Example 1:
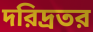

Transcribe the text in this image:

দরিদ্রতর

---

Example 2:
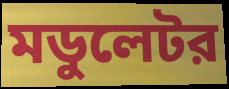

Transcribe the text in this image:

মডুলেটর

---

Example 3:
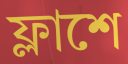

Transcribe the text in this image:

ফ্লাশে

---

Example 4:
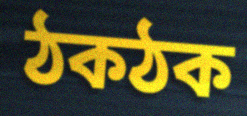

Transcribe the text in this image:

ঠকঠক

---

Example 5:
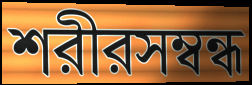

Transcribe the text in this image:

শরীরসম্বন্ধ